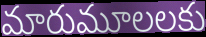
మారుమూలలకు